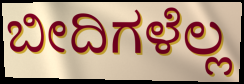
ಬೀದಿಗಳೆಲ್ಲ